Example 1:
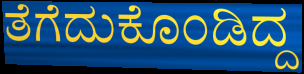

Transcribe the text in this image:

ತೆಗೆದುಕೊಂಡಿದ್ದ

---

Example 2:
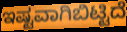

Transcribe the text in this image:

ಇಷ್ಟವಾಗಿಬಿಟ್ಟಿದೆ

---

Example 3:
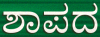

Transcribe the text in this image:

ಶಾಪದ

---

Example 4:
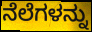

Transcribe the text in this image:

ನೆಲೆಗಳನ್ನು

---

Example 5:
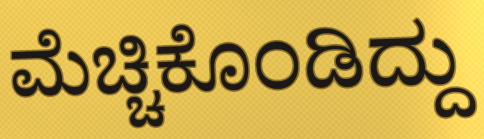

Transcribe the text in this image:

ಮೆಚ್ಚಿಕೊಂಡಿದ್ದು